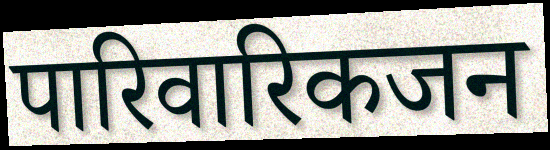
पारिवारिकजन